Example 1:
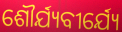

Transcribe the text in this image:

ଶୌର୍ଯ୍ୟବୀର୍ଯ୍ୟେ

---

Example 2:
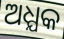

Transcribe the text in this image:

ଅଧ୍ଯକ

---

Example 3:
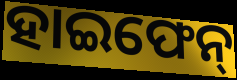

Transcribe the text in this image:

ହାଇଫେନ୍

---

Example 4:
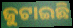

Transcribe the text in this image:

ଜୁଟାଇଛି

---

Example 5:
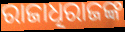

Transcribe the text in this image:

ରାଜାଧିରାଜଙ୍କ